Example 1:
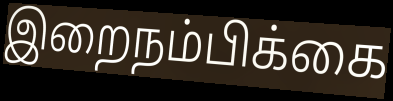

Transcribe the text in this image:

இறைநம்பிக்கை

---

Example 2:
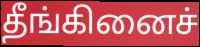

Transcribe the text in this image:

தீங்கினைச்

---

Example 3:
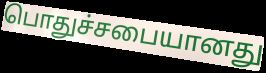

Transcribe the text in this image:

பொதுச்சபையானது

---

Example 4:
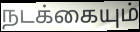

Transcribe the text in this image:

நடக்கையும்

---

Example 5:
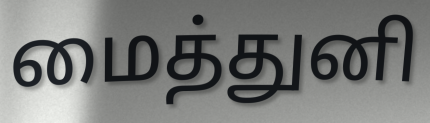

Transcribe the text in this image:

மைத்துனி